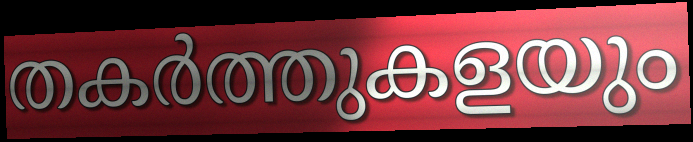
തകർത്തുകളയും